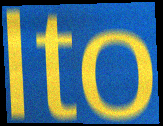
Ito